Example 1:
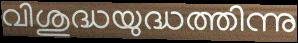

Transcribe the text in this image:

വിശുദ്ധയുദ്ധത്തിന്നു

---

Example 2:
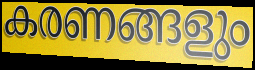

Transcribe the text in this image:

കരണങ്ങളും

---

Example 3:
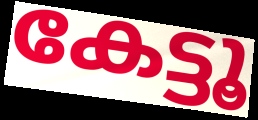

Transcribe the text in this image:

കേട്ടൂ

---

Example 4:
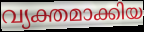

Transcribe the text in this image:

വ്യക്തമാക്കിയ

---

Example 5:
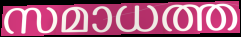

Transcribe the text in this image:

സമാധത്ത